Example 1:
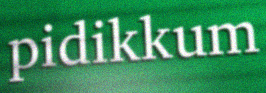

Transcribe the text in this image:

pidikkum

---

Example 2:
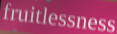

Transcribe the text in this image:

fruitlessness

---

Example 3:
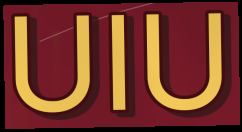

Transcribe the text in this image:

UIU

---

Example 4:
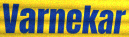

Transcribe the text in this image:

Varnekar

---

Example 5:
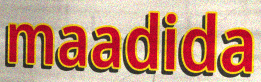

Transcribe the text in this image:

maadida